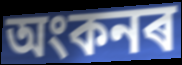
অংকনৰ